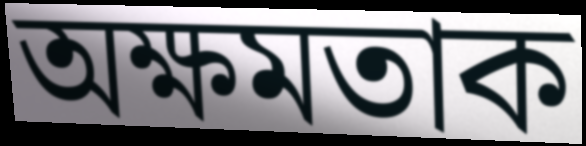
অক্ষমতাক